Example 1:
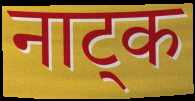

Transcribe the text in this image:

नाट्क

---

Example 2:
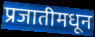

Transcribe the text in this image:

प्रजातीमधून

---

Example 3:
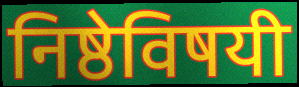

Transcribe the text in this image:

निष्ठेविषयी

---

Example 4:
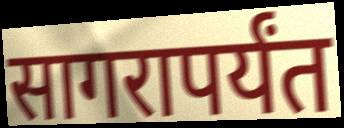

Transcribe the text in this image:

सागरापर्यंत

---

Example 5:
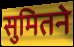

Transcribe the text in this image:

सुमितने